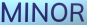
MINOR